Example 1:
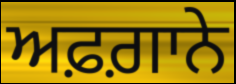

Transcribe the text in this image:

ਅਫ਼ਗ਼ਾਨੇ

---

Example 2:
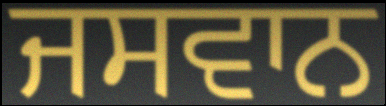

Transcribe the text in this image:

ਜਸਵਾਨ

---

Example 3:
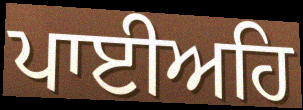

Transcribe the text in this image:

ਪਾਈਅਹਿ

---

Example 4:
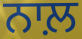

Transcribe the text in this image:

ਨਾਲ਼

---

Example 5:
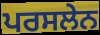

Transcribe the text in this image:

ਪਰਸਲੇਨ